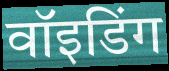
वॉइडिंग